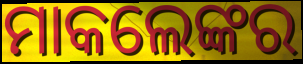
ମାକଲେଙ୍କର